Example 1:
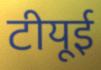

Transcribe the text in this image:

टीयूई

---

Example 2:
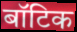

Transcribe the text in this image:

बॉटिक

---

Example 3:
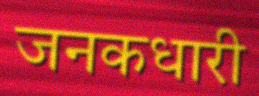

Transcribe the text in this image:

जनकधारी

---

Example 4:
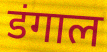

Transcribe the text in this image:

डंगाल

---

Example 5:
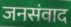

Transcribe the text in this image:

जनसंवाद